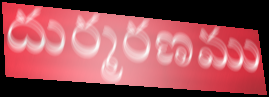
దుర్మరణము